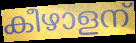
കീഴാളന്